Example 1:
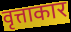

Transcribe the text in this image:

वृत्ताकार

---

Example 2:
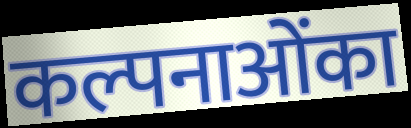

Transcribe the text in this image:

कल्पनाओंका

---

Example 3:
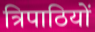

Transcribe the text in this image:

त्रिपाठियों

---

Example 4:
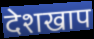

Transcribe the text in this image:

देशखाप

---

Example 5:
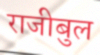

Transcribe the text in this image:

राजीबुल